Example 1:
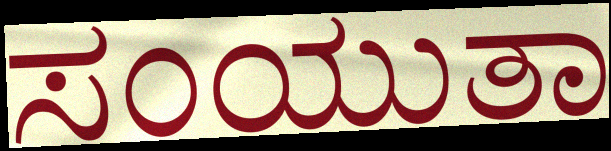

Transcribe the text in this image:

ಸಂಯುತಾ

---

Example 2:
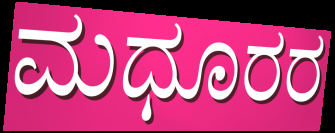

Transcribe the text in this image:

ಮಧೂರರ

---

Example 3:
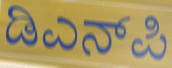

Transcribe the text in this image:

ಡಿಎನ್‌ಪಿ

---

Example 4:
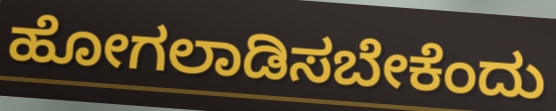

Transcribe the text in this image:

ಹೋಗಲಾಡಿಸಬೇಕೆಂದು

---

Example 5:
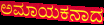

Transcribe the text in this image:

ಅಮಾಯಕನಾದ